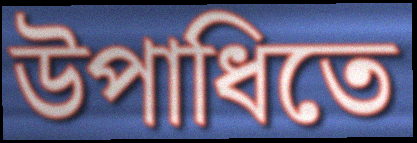
উপাধিতে